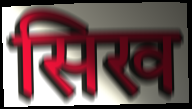
सिख